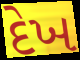
દેખ